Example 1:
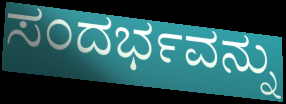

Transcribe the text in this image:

ಸಂದರ್ಭವನ್ನು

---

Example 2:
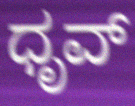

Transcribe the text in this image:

ಧೃವ್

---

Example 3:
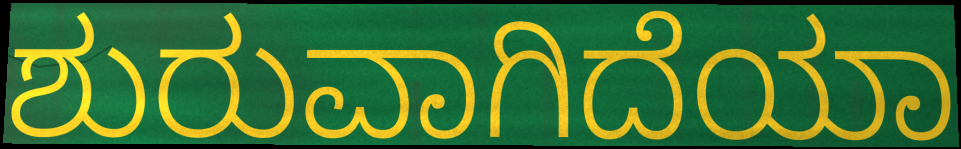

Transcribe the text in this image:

ಶುರುವಾಗಿದೆಯಾ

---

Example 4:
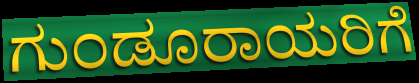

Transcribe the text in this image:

ಗುಂಡೂರಾಯರಿಗೆ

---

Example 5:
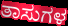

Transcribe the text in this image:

ತಾಸುಗಳ